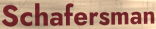
Schafersman